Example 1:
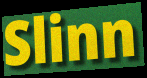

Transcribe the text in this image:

Slinn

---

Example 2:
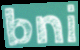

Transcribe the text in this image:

bni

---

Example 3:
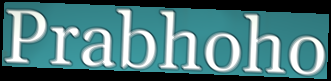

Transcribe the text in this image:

Prabhoho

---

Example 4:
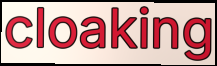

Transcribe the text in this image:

cloaking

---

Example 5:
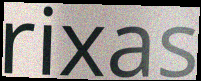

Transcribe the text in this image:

rixas